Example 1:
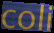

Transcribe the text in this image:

coli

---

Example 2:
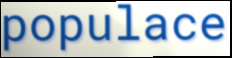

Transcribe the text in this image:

populace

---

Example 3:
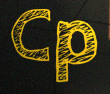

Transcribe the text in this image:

Cp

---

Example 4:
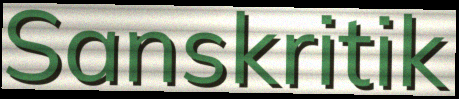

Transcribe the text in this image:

Sanskritik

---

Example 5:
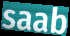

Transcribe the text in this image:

saab